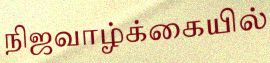
நிஜவாழ்க்கையில்